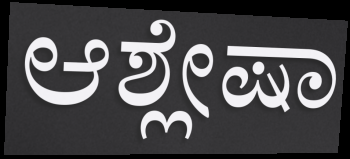
ಆಶ್ಲೇಷಾ